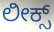
ಲೀಕ್ಸ್